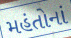
મહંતોનાં